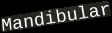
Mandibular